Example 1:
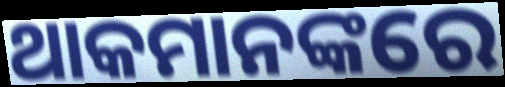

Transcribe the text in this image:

ଥାକମାନଙ୍କରେ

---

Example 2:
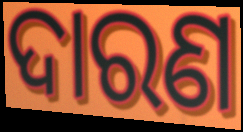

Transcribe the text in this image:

ଦାରଣ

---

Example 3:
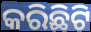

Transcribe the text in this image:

କରିଛିଟି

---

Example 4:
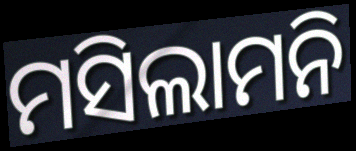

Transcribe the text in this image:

ମସିଲାମନି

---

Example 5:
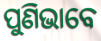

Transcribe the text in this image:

ପୁଣିଭାବେ